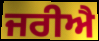
ਜਰੀਐ